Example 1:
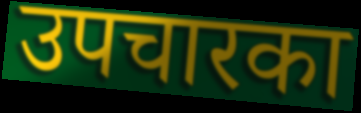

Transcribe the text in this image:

उपचारका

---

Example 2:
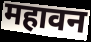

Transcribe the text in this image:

महावन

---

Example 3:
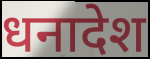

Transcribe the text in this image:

धनादेश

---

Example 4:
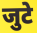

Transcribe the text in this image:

जुटे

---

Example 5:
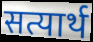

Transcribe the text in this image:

सत्यार्थ